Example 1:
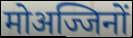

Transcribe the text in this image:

मोअज्जिनों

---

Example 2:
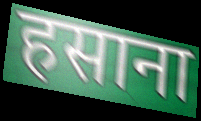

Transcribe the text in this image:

हसाना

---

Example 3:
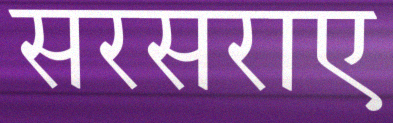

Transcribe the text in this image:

सरसराए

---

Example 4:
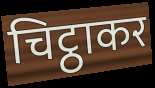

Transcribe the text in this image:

चिट्ठाकर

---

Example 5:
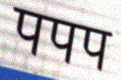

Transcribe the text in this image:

पपप